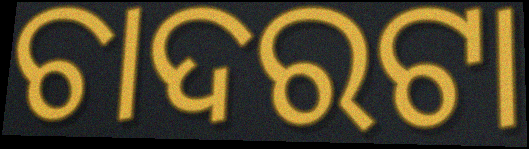
ଚାଦରଟା